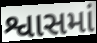
શ્વાસમાં